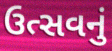
ઉત્સવનું